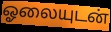
ஓலையுடன்